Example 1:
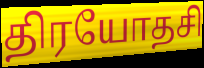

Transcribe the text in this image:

திரயோதசி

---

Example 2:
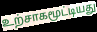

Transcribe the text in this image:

உற்சாகமூட்டியது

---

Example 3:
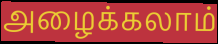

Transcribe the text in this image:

அழைக்கலாம்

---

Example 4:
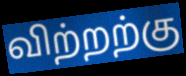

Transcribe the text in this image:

விற்றற்கு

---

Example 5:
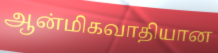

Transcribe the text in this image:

ஆன்மிகவாதியான